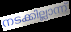
നടക്കില്ലാന്ന്